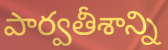
పార్వతీశాన్ని